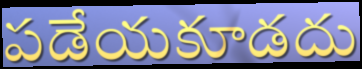
పడేయకూడదు